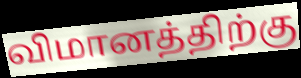
விமானத்திற்கு